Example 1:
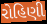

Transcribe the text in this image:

રોહિણી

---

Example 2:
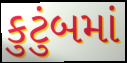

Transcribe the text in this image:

કુટુંબમાં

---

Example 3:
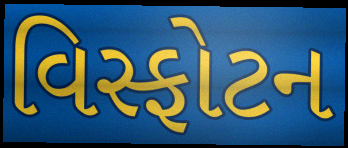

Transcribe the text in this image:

વિસ્ફોટન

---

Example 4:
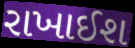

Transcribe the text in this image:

રાખાઈશ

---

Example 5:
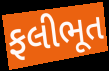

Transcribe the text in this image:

ફલીભૂત